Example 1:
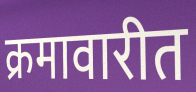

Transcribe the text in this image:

क्रमावारीत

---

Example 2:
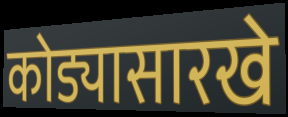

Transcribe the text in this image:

कोड्यासारखे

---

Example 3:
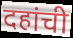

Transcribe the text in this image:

दहांची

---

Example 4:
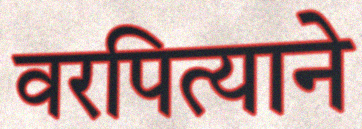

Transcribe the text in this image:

वरपित्याने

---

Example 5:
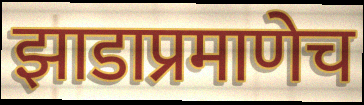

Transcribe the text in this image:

झाडाप्रमाणेच